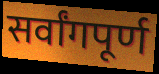
सर्वांगपूर्ण